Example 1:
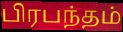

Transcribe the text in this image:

பிரபந்தம்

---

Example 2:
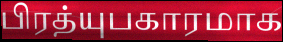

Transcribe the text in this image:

பிரத்யுபகாரமாக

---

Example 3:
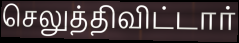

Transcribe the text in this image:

செலுத்திவிட்டார்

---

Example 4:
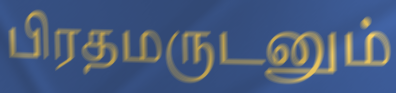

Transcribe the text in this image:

பிரதமருடனும்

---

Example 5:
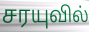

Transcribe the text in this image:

சரயுவில்